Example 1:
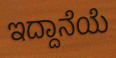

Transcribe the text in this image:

ಇದ್ದಾನೆಯೆ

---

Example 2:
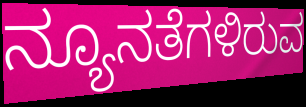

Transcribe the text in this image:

ನ್ಯೂನತೆಗಳಿರುವ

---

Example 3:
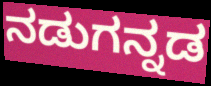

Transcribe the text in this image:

ನಡುಗನ್ನಡ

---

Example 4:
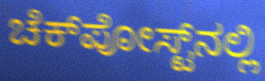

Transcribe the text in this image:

ಚೆಕ್‌ಪೋಸ್ಟ್‌ನಲ್ಲಿ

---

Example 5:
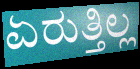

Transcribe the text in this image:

ಏರುತ್ತಿಲ್ಲ